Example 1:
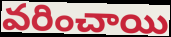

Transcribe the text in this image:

వరించాయి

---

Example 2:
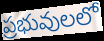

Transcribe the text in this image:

ప్రభువులలో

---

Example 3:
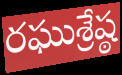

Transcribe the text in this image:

రఘుశ్రేష్ఠ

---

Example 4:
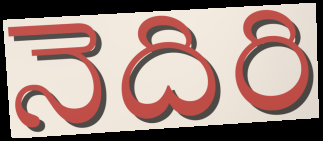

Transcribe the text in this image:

నెదిరి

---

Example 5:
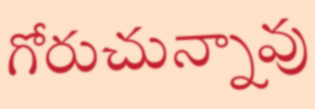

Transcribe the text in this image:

గోరుచున్నావు